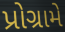
પ્રોગ્રામે